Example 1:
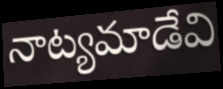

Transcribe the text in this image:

నాట్యమాడేవి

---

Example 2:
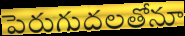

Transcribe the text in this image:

పెరుగుదలతోనూ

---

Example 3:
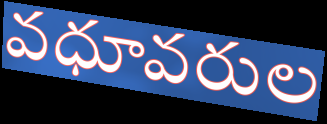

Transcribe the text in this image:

వధూవరుల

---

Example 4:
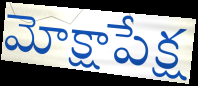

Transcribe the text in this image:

మోక్షాపేక్ష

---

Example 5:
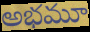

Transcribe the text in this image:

అభమూ